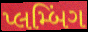
પ્લમ્બિંગ